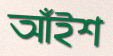
আঁইশ